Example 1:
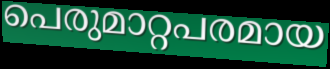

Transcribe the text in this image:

പെരുമാറ്റപരമായ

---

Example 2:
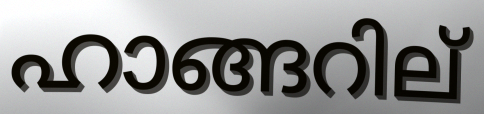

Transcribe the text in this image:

ഹാങ്ങറില്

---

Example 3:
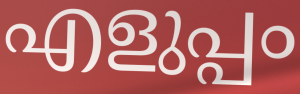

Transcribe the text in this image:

എളുപ്പം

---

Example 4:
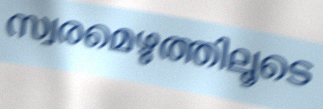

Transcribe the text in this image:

സ്വരമെഴുത്തിലൂടെ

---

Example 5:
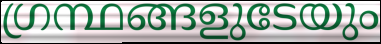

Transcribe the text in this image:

ഗ്രന്ഥങ്ങളുടേയും